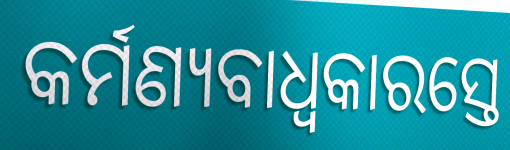
କର୍ମଣ୍ୟବାଧ୍ୱକାରସ୍ତେ